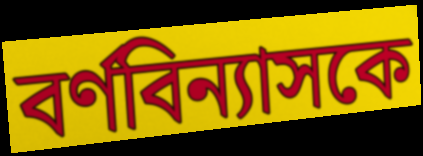
বর্ণবিন্যাসকে